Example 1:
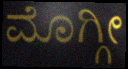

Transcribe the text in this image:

ಮೊಗ್ಗೀ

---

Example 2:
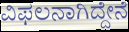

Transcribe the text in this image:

ವಿಫಲನಾಗಿದ್ದೇನೆ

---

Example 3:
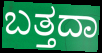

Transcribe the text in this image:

ಬತ್ತದಾ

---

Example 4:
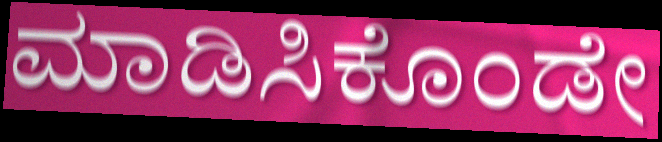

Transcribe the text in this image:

ಮಾಡಿಸಿಕೊಂಡೇ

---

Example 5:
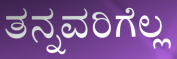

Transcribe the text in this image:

ತನ್ನವರಿಗೆಲ್ಲ